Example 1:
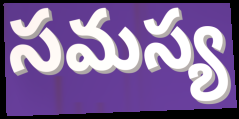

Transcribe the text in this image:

సమస్య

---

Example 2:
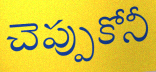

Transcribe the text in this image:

చెప్పుకోనీ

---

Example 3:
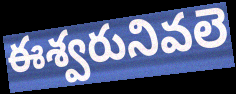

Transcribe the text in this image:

ఈశ్వరునివలె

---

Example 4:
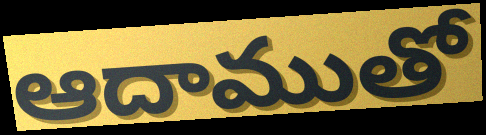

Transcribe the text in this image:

ఆదాముతో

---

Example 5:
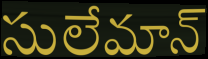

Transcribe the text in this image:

సులేమాన్